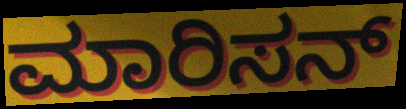
ಮಾರಿಸನ್